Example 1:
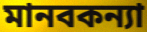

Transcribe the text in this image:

মানবকন্যা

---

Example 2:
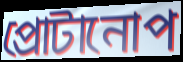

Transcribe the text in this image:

প্রোটানোপ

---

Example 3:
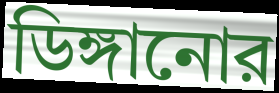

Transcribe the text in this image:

ডিঙ্গানোর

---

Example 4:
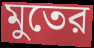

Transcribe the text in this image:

মুতের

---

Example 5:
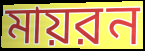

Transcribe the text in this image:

মায়রন